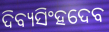
ଦିବ୍ୟସିଂହଦେବ